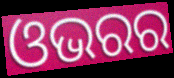
ଓଭରର